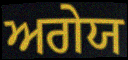
ਅਗੇਯ